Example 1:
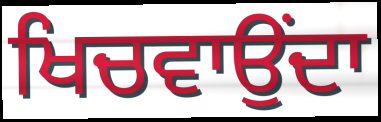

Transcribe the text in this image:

ਖਿਚਵਾਉਂਦਾ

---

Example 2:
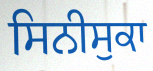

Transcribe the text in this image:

ਸਿਨੀਸੁਕਾ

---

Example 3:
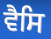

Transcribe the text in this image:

ਵੈਸਿ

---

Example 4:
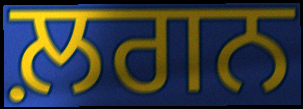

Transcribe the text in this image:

ਲ਼ਗਨ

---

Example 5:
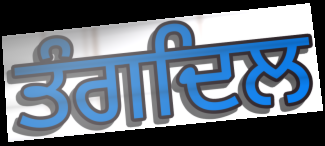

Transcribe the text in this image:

ਤੰਗਦਿਲ